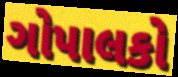
ગોપાલકો